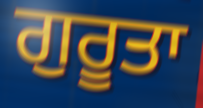
ਗੁਰੂਤਾ